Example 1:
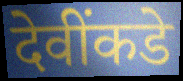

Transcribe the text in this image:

देवींकडे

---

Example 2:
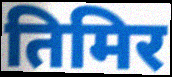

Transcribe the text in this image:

तिमिर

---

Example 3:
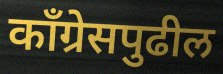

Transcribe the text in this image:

काँग्रेसपुढील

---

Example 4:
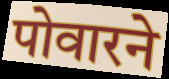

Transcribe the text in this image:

पोवारने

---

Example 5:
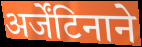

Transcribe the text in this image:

अर्जेंटिनाने